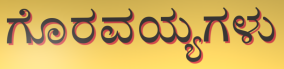
ಗೊರವಯ್ಯಗಳು